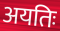
अयतिः